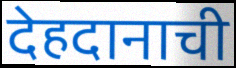
देहदानाची